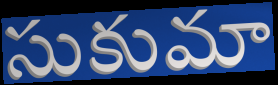
సుకుమా